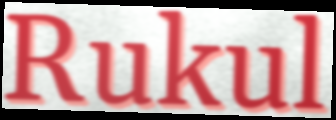
Rukul